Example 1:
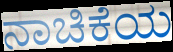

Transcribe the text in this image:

ನಾಚಿಕೆಯ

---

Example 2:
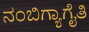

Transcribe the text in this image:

ನಂಬಿಗ್ಯಾಗೈತಿ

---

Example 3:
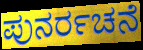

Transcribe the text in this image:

ಪುನರ್ರಚನೆ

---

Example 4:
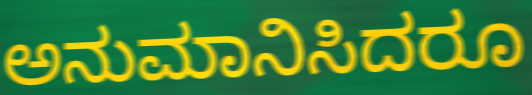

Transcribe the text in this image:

ಅನುಮಾನಿಸಿದರೂ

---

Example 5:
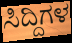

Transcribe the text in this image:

ಸಿದ್ದಿಗಳ